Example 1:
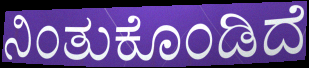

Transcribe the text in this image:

ನಿಂತುಕೊಂಡಿದೆ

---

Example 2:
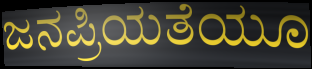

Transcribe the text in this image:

ಜನಪ್ರಿಯತೆಯೂ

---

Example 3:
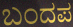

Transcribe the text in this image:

ಬಂದಪ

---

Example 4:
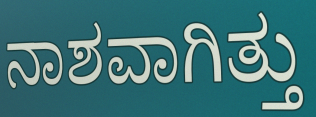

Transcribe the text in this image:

ನಾಶವಾಗಿತ್ತು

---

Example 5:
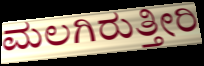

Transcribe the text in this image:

ಮಲಗಿರುತ್ತೀರಿ